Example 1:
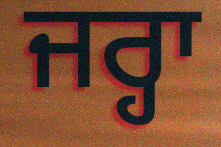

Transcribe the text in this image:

ਜਰ੍ਹਾ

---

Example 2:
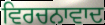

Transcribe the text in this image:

ਵਿਰਚਨਾਵਾਦ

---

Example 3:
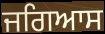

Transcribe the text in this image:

ਜਗਿਆਸ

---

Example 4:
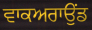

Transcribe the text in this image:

ਵਾਕਅਰਾਉਂਡ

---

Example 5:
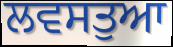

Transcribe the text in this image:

ਲਵਸਤੁਆ